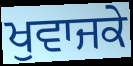
ਖੁਵਾਜਕੇ